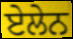
ਏਲੇਨ